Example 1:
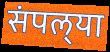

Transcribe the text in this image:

संपल्या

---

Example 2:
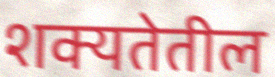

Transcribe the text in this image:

शक्यतेतील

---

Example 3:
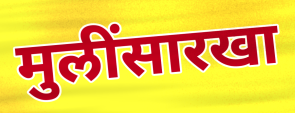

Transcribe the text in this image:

मुलींसारखा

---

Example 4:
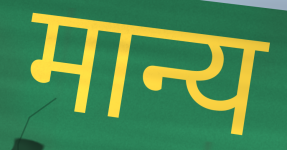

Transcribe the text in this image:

मान्य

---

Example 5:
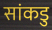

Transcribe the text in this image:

सांकडु